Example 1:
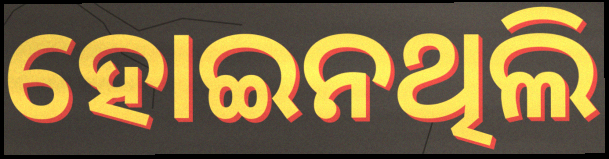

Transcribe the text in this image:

ହୋଇନଥିଲି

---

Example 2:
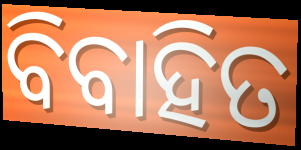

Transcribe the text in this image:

ବିବାହିତ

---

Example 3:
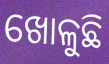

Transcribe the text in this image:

ଖୋଳୁଛି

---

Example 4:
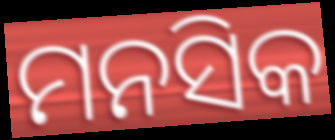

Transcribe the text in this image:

ମନସିକ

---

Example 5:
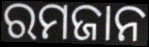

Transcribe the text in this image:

ରମଜାନ